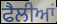
ਫੈਲੀਆਂ